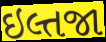
ઇલ્તજા